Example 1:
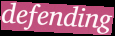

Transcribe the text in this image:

defending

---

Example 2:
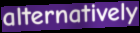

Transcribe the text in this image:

alternatively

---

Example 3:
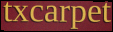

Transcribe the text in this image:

txcarpet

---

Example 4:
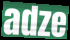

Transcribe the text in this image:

adze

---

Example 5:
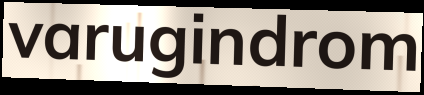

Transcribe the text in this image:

varugindrom